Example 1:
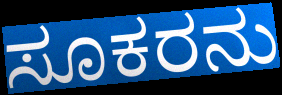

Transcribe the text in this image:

ಸೂಕರನು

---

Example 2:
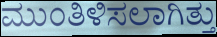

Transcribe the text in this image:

ಮುಂತಿಳಿಸಲಾಗಿತ್ತು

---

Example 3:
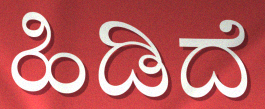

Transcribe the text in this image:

ಹಿಡಿದೆ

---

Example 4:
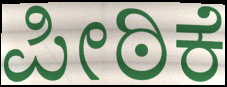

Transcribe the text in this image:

ಪೀಠಿಕೆ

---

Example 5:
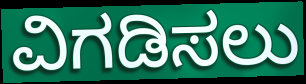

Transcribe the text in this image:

ವಿಗಡಿಸಲು